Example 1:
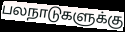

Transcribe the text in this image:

பலநாடுகளுக்கு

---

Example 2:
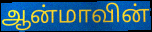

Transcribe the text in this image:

ஆன்மாவின்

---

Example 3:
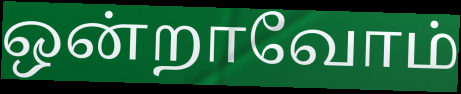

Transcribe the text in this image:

ஒன்றாவோம்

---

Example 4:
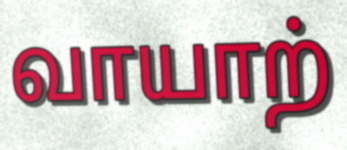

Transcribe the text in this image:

வாயாற்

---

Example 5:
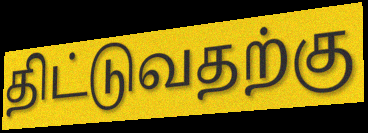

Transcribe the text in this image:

திட்டுவதற்கு